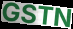
GSTN